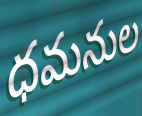
ధమనుల